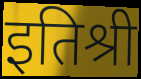
इतिश्री